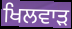
ਖਿਲਵਾੜ